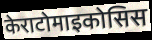
केराटोमाइकोसिस